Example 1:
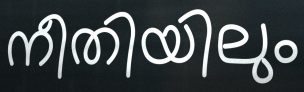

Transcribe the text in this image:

നീതിയിലും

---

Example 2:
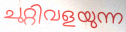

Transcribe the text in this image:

ചുറ്റിവളയുന്ന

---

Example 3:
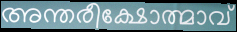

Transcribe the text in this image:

അന്തരീക്ഷോത്മാവ്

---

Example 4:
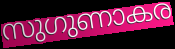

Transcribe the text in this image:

സുഗുണാകര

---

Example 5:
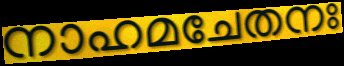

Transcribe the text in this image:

നാഹമചേതനഃ